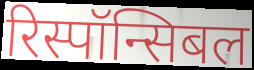
रिस्पॉन्सिबल